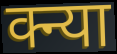
क्न्या